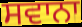
ਸਵਾਨਾ